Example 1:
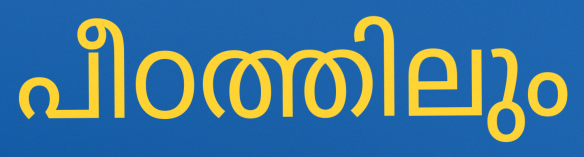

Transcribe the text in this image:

പീഠത്തിലും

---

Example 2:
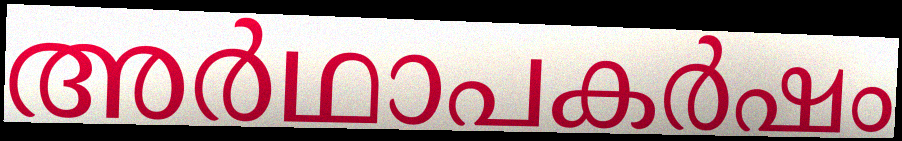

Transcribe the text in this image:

അർഥാപകർഷം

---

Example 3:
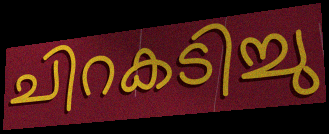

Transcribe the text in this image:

ചിറകടിച്ചു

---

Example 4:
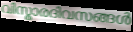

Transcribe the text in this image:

വിസ്താരദിവസങ്ങൾ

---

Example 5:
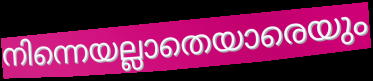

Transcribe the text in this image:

നിന്നെയല്ലാതെയാരെയും